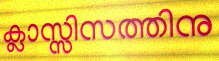
ക്ലാസ്സിസത്തിനു